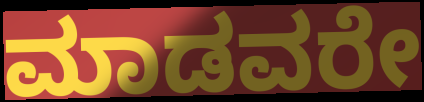
ಮಾಡವರೇ